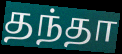
தந்தா